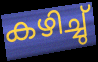
കഴിച്ചു്